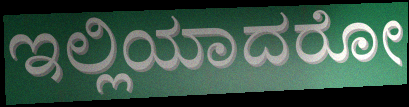
ಇಲ್ಲಿಯಾದರೋ